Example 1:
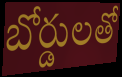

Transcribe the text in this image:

బోర్డులతో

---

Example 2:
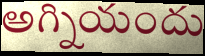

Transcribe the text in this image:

అగ్నియందు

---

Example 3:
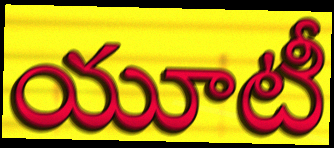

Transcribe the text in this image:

యూటీ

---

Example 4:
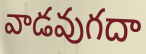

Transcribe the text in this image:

వాడవుగదా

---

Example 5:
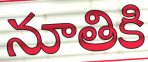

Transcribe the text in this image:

నూతికి